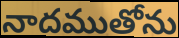
నాదముతోను